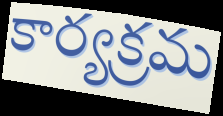
కార్యక్రమ